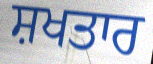
ਸ਼ਖਤਾਰ